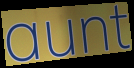
aunt